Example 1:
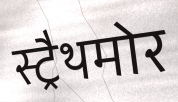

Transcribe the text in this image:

स्ट्रैथमोर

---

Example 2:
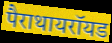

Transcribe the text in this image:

पैराथायरॉयड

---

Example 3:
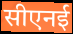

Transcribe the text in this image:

सीएनई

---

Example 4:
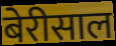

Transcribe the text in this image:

बेरीसाल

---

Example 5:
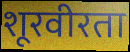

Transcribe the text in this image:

शूरवीरता